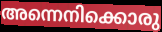
അന്നെനിക്കൊരു